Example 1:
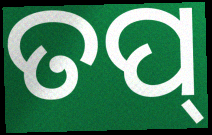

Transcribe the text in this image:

ତପ୍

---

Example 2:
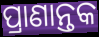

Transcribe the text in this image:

ପ୍ରାଣାନ୍ତକ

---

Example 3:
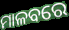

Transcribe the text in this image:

ମାଳବରେ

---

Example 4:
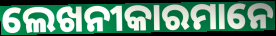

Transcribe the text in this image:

ଲେଖନୀକାରମାନେ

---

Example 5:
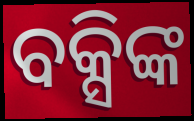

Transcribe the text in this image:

ବକ୍ସିଙ୍କ